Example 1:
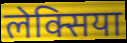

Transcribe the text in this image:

लेक्सिया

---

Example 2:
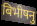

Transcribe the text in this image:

बिभीषनु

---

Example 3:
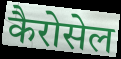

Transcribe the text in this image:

कैरोसेल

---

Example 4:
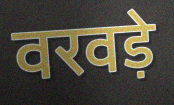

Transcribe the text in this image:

वरवड़े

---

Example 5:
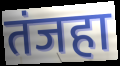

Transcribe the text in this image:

तंजहा